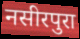
नसीरपुरा